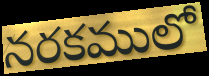
నరకములో